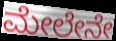
ಮೇಲೇನೇ